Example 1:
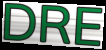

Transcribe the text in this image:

DRE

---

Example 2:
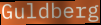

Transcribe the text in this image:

Guldberg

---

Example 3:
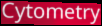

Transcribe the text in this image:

Cytometry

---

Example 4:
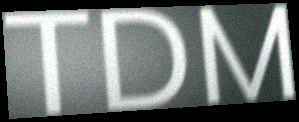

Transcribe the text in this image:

TDM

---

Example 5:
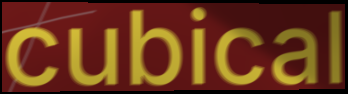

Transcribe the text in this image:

cubical